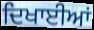
ਦਿਖਾਈਆਂ